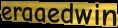
eraaedwin